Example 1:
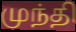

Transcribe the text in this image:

முந்தி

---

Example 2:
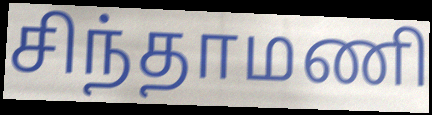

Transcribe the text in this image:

சிந்தாமணி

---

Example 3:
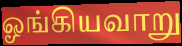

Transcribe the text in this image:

ஓங்கியவாறு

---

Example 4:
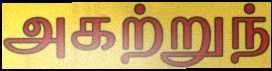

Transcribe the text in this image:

அகற்றுந்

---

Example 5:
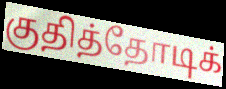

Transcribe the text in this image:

குதித்தோடிக்